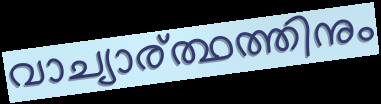
വാച്യാര്ത്ഥത്തിനും